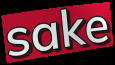
sake